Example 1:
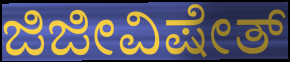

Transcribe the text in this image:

ಜಿಜೀವಿಷೇತ್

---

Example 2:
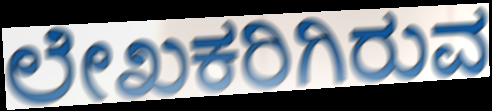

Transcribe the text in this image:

ಲೇಖಕರಿಗಿರುವ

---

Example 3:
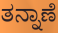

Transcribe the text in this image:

ತನ್ನಾಣೆ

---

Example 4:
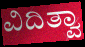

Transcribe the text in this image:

ವಿದಿತ್ವಾ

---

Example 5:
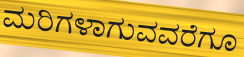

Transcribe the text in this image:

ಮರಿಗಳಾಗುವವರೆಗೂ